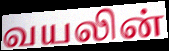
வயலின்